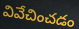
వివేచించడం